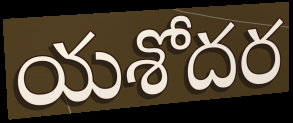
యశోదర